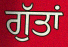
ਗੁੱਤਾਂ